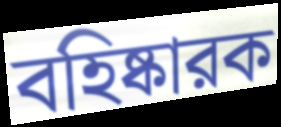
বহিষ্কারক